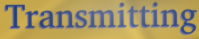
Transmitting